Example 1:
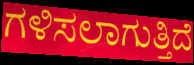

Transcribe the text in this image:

ಗಳಿಸಲಾಗುತ್ತಿದೆ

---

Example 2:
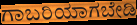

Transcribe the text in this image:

ಗಾಬರಿಯಾಗಬೇಡಿ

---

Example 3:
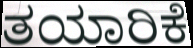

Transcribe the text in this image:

ತಯಾರಿಕೆ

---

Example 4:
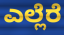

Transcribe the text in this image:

ಎಲ್ಲೆರೆ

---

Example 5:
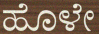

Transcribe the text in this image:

ಹೊಳೇ